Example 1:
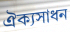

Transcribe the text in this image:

ঐক্যসাধন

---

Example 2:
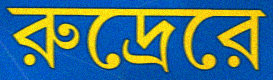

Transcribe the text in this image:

রুদ্রেরে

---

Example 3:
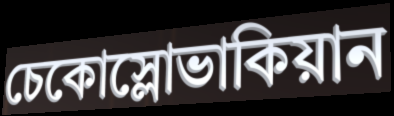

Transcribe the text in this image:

চেকোস্লোভাকিয়ান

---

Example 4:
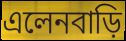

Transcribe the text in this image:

এলেনবাড়ি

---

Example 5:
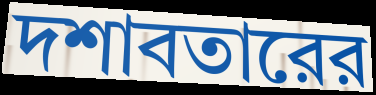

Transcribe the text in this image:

দশাবতারের